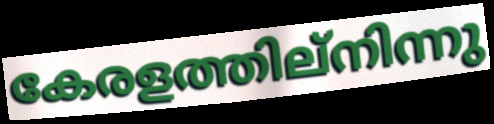
കേരളത്തില്നിന്നു